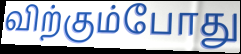
விற்கும்போது